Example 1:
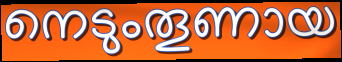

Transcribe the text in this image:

നെടുംതൂണായ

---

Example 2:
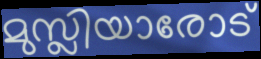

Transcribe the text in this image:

മുസ്ലിയാരോട്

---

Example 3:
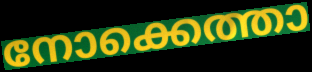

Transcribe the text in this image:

നോക്കെത്താ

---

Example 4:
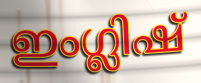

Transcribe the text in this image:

ഇംഗ്ലിഷ്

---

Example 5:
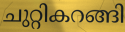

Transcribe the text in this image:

ചുറ്റികറങ്ങി